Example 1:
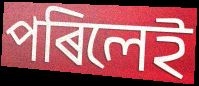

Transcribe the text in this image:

পৰিলেই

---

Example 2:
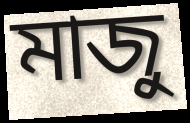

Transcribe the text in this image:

মাজু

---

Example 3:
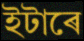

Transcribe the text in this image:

ইটাৰে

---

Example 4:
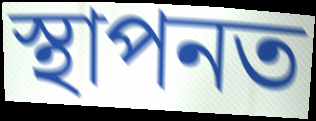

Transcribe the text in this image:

স্থাপনত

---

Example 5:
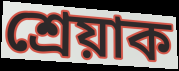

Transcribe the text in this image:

শ্ৰেয়াক